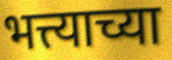
भत्त्याच्या